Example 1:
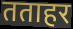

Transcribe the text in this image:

तताहर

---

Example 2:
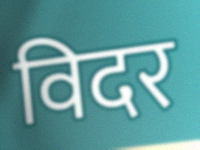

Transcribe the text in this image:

विदर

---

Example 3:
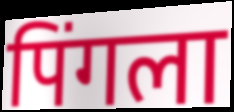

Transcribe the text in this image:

पिंगला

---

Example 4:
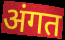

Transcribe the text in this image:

अंगत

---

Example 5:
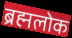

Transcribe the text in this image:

ब्रह्मलोक